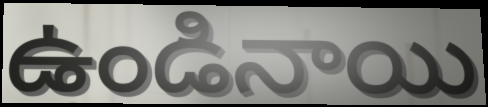
ఉండినాయి